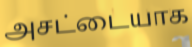
அசட்டையாக